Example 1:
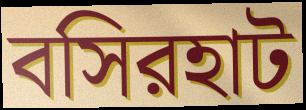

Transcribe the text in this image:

বসিরহাট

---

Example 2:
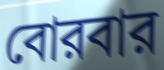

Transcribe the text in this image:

বোরবার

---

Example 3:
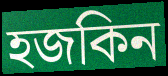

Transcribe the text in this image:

হজকিন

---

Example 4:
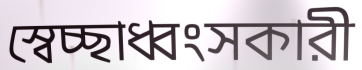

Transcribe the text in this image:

স্বেচ্ছাধ্বংসকারী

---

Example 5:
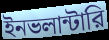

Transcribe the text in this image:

ইনভলান্টারি